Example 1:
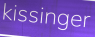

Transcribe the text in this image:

kissinger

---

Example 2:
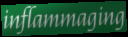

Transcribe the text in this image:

inflammaging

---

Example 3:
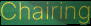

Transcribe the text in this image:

Chairing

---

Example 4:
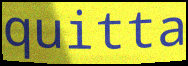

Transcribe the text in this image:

quitta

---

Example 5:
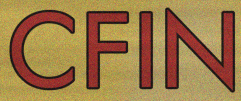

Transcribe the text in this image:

CFIN